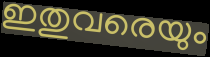
ഇതുവരെയും